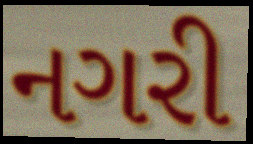
નગરી